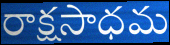
రాక్షసాధమ